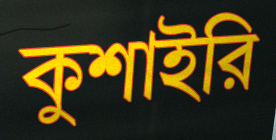
কুশাইরি